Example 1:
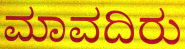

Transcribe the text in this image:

ಮಾವದಿರು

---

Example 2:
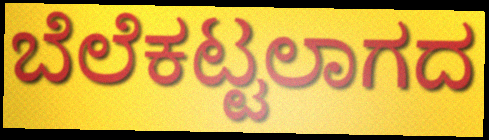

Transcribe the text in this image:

ಬೆಲೆಕಟ್ಟಲಾಗದ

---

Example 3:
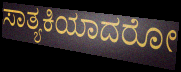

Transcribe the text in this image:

ಸಾತ್ಯಕಿಯಾದರೋ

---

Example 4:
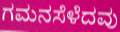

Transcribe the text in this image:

ಗಮನಸೆಳೆದವು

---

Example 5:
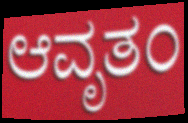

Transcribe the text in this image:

ಆವೃತಂ